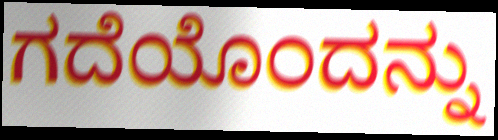
ಗದೆಯೊಂದನ್ನು